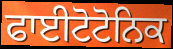
ਫਾਈਟੋਟੋਨਿਕ